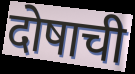
दोषाची